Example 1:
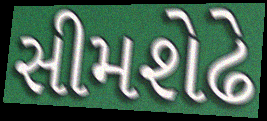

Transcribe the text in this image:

સીમશેઢે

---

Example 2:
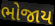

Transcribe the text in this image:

ભોજાય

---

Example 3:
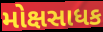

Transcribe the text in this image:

મોક્ષસાધક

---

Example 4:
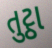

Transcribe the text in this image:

તુટ્ઠા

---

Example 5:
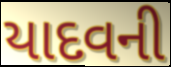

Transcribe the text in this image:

યાદવની